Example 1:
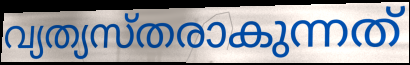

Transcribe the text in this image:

വ്യത്യസ്തരാകുന്നത്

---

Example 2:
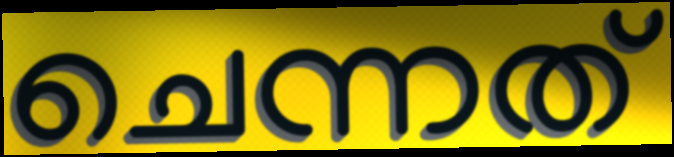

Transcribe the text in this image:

ചെന്നത്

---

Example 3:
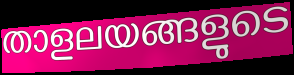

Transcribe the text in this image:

താളലയങ്ങളുടെ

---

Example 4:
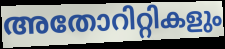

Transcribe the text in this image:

അതോറിറ്റികളും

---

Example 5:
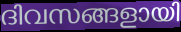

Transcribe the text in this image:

ദിവസങ്ങളായി